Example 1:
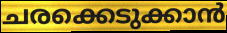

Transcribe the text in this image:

ചരക്കെടുക്കാൻ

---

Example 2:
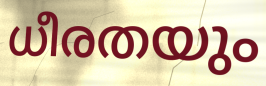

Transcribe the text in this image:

ധീരതയും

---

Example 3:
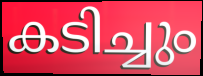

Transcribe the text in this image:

കടിച്ചും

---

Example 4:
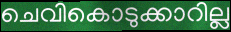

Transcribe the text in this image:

ചെവികൊടുക്കാറില്ല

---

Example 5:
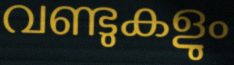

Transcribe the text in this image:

വണ്ടുകളും